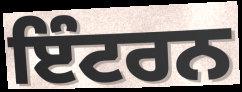
ਇੰਟਰਨ